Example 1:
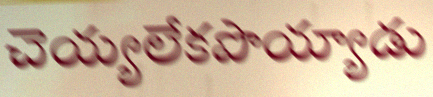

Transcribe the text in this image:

చెయ్యలేకపొయ్యాడు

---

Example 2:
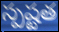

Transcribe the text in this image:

స్పష్టత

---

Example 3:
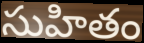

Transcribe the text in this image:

సుహితం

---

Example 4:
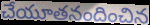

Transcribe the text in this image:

చేయూతనందించిన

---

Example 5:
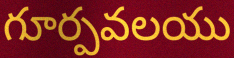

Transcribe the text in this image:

గూర్పవలయు